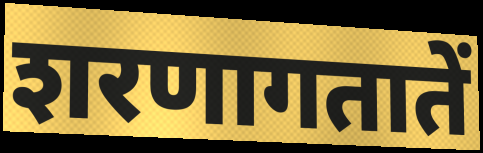
शरणागतातें